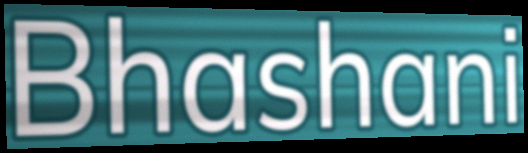
Bhashani